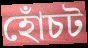
হোঁচট